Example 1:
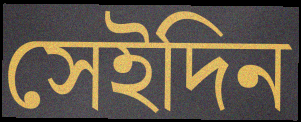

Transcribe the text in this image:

সেইদিন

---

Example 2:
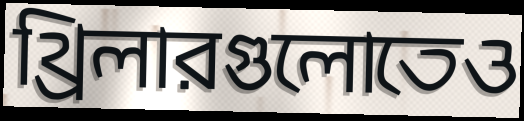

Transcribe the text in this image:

থ্রিলারগুলোতেও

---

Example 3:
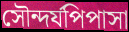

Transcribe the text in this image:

সৌন্দর্যপিপাসা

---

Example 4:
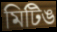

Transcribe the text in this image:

মিটিঙ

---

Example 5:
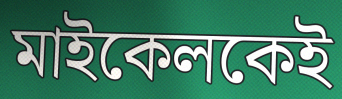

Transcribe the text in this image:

মাইকেলকেই